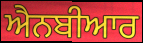
ਐਨਬੀਆਰ